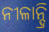
ନୀଳାନ୍ଦ୍ରି